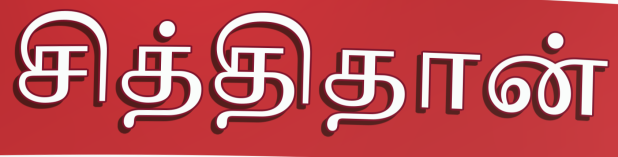
சித்திதான்